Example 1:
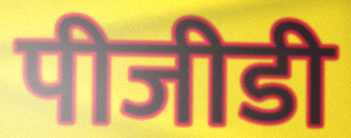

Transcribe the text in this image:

पीजीडी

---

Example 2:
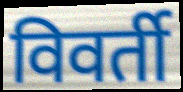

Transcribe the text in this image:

विवर्ती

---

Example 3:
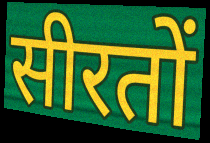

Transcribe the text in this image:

सीरतों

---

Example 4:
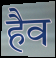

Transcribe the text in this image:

हैव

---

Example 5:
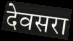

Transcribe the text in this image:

देवसरा